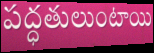
పద్ధతులుంటాయి